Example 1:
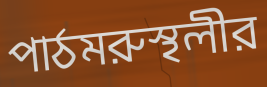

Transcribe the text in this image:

পাঠমরুস্থলীর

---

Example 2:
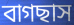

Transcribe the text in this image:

বাগছাস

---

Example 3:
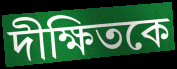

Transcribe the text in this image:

দীক্ষিতকে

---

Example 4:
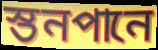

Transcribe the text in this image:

স্তনপানে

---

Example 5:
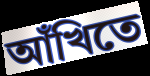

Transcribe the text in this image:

আঁখিতে